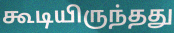
கூடியிருந்தது